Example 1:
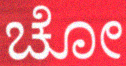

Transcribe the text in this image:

ಚೋ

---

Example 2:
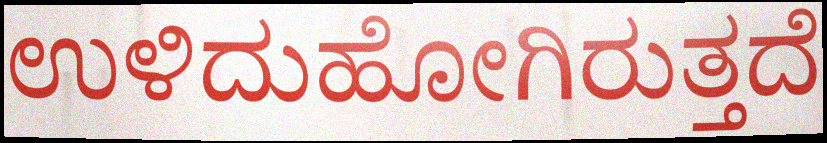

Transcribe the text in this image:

ಉಳಿದುಹೋಗಿರುತ್ತದೆ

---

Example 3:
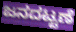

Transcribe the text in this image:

ಜನದಟ್ಟಣೆ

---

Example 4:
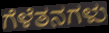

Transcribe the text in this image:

ಗೆಳೆತನಗಳು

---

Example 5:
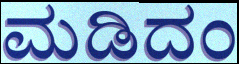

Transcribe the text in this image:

ಮಡಿದಂ